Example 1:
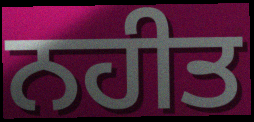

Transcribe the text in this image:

ਨਹੀਤ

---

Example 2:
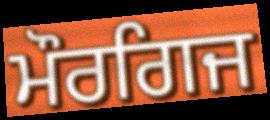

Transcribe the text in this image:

ਮੌਰਗਿਜ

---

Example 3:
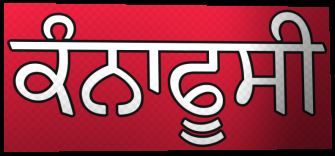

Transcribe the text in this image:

ਕੰਨਾਫੂਸੀ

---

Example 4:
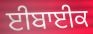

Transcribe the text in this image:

ਈਬਾਈਕ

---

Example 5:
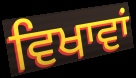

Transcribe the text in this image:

ਵਿਖਾਵਾਂ